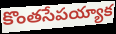
కొంతసేపయ్యాక